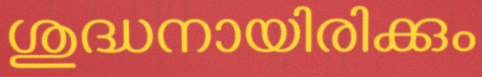
ശുദ്ധനായിരിക്കും